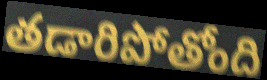
తడారిపోతోంది